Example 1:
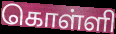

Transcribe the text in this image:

கொள்ளி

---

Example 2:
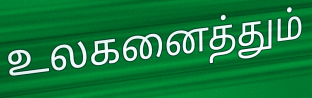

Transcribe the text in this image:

உலகனைத்தும்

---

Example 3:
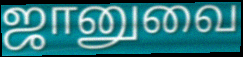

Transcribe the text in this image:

ஜானுவை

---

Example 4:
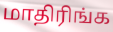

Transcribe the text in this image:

மாதிரிங்க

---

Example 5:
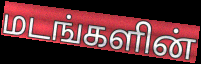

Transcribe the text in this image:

மடங்களின்